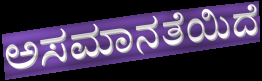
ಅಸಮಾನತೆಯಿದೆ